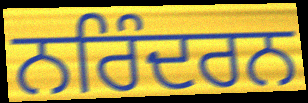
ਨਰਿੰਦਰਨ